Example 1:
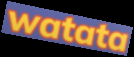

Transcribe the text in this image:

watata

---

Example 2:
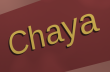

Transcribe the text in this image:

Chaya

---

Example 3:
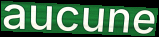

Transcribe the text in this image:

aucune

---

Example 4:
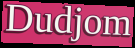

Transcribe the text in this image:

Dudjom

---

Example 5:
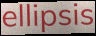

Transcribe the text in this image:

ellipsis